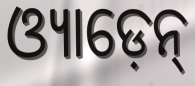
ଓ୍ୟାଡ଼େନ୍